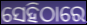
ସେହିଠାରେ